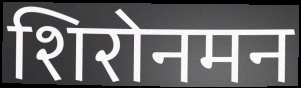
शिरोनमन